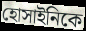
হোসাইনিকে